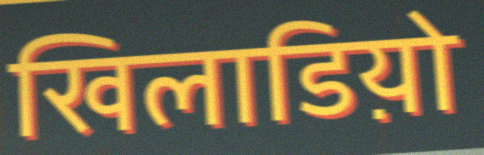
खिलाडिय़ो